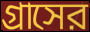
গ্রাসের